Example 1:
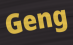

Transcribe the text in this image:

Geng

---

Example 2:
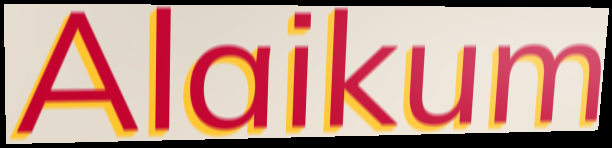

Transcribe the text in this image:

Alaikum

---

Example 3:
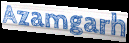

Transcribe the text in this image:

Azamgarh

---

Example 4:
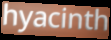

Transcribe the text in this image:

hyacinth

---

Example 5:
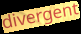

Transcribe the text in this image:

divergent